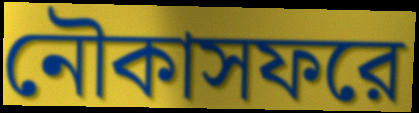
নৌকাসফরে